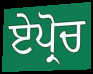
ਏਪ੍ਰੋਚ